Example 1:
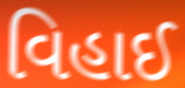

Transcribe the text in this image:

વિહાઈ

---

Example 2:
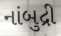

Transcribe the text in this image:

નાંબુદ્રી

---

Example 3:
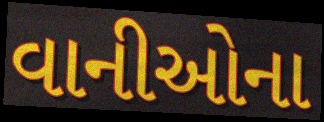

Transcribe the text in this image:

વાનીઓના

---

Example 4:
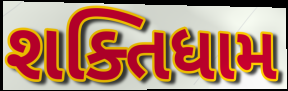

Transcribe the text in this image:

શક્તિધામ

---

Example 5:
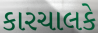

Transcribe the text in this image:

કારચાલકે